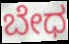
ಬೇಧ